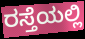
ರಸ್ತೆಯಲ್ಲಿ